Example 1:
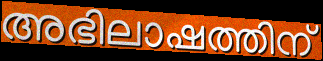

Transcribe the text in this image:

അഭിലാഷത്തിന്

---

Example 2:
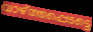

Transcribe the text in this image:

വാഴ്ത്തപ്പെടട്ടെ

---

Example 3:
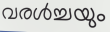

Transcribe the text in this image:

വരൾച്ചയും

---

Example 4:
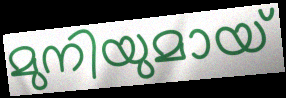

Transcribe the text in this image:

മുനിയുമായ്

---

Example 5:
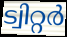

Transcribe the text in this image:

ട്വിറ്റർ